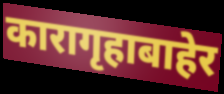
कारागृहाबाहेर